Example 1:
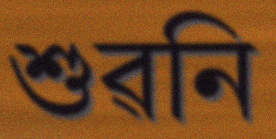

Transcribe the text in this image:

শুৱনি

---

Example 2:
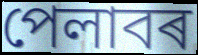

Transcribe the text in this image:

পেলাবৰ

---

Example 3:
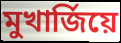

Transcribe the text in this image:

মুখাৰ্জিয়ে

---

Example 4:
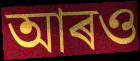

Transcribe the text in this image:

আৰও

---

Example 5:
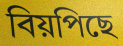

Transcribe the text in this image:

বিয়পিছে